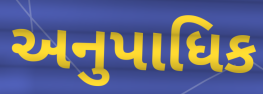
અનુપાધિક